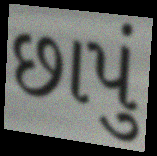
છાપું